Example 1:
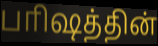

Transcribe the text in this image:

பரிஷத்தின்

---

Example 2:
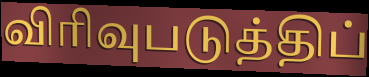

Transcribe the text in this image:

விரிவுபடுத்திப்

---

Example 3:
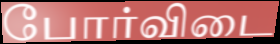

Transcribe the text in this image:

போர்விடை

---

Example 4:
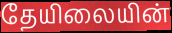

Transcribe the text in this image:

தேயிலையின்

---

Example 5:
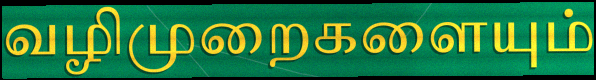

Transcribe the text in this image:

வழிமுறைகளையும்